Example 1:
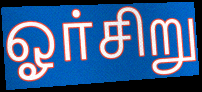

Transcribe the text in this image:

ஓர்சிறு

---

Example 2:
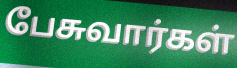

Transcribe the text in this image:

பேசுவார்கள்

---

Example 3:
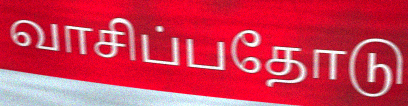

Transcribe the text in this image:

வாசிப்பதோடு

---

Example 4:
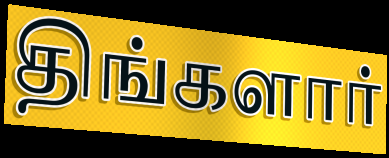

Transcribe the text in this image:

திங்களார்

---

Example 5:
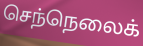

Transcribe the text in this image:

செந்நெலைக்